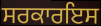
ਸਰਕਾਰਇਸ